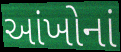
આંખોનાં